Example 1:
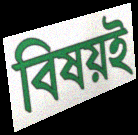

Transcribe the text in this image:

বিষয়ই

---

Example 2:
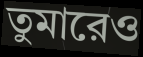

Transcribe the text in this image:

তুমারেও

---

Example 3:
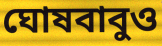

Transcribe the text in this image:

ঘোষবাবুও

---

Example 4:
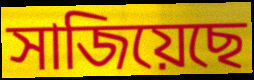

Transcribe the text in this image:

সাজিয়েছে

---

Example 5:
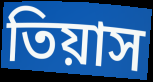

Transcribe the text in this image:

তিয়াস